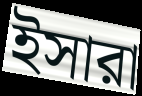
ইসারা